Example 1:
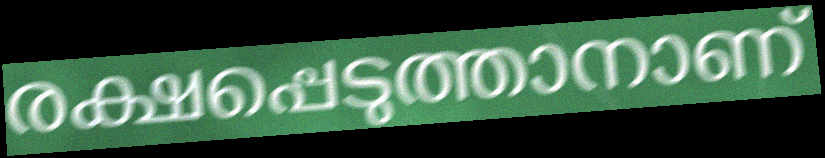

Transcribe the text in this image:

രക്ഷപ്പെടുത്താനാണ്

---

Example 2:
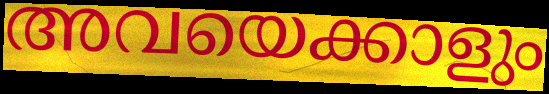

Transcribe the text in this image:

അവയെക്കാളും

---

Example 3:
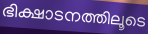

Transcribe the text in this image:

ഭിക്ഷാടനത്തിലൂടെ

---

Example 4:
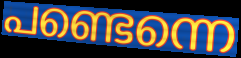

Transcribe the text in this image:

പണ്ടെന്നെ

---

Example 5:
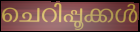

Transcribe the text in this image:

ചെറിപ്പൂക്കൾ